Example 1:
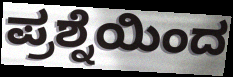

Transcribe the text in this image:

ಪ್ರಶ್ನೆಯಿಂದ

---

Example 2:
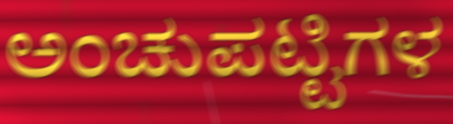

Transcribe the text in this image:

ಅಂಚುಪಟ್ಟಿಗಳ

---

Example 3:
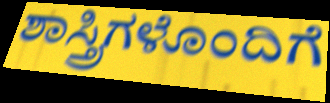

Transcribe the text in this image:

ಶಾಸ್ತ್ರಿಗಳೊಂದಿಗೆ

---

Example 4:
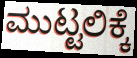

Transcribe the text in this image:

ಮುಟ್ಟಲಿಕ್ಕೆ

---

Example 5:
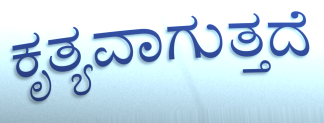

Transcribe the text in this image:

ಕೃತ್ಯವಾಗುತ್ತದೆ